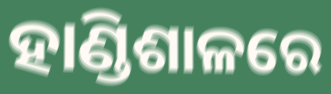
ହାଣ୍ଡିଶାଳରେ